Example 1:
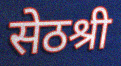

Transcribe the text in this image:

सेठश्री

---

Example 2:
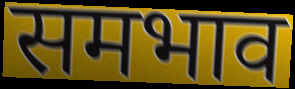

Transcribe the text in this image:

समभाव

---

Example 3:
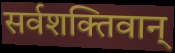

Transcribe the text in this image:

सर्वशक्तिवान्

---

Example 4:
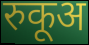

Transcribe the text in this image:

रुकूअ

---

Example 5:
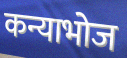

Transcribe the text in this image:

कन्याभोज